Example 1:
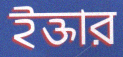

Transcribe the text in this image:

ইক্তার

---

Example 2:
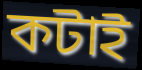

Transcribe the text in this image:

কটাই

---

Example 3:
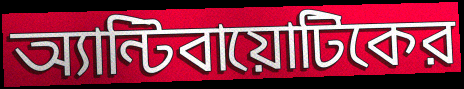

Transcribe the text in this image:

অ্যান্টিবায়োটিকের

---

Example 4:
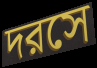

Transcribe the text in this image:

দরসে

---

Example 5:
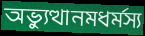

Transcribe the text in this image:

অভ্যুত্থানমধর্মস্য